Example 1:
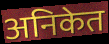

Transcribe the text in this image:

अनिकेत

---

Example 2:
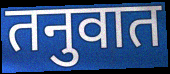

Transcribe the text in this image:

तनुवात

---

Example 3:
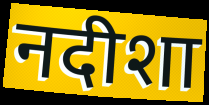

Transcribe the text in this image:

नदीशा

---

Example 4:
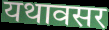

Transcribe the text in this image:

यथावसर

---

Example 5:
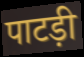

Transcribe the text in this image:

पाटड़ी